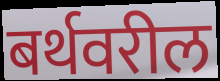
बर्थवरील